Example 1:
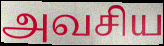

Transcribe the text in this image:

அவசிய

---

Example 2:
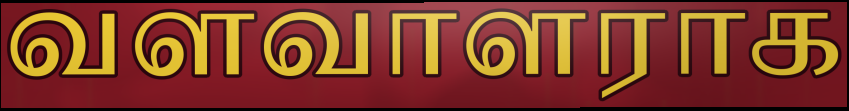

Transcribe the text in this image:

வளவாளராக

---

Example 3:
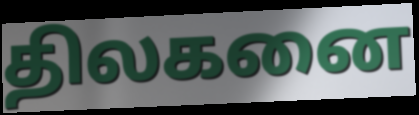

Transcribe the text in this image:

திலகனை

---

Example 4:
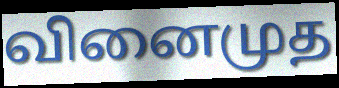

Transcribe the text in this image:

வினைமுத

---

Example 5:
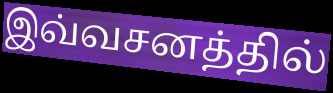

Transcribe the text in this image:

இவ்வசனத்தில்